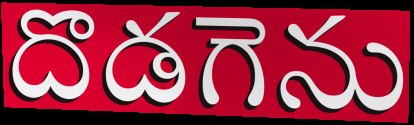
దొడగెను